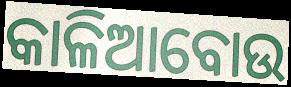
କାଳିଆବୋଉ